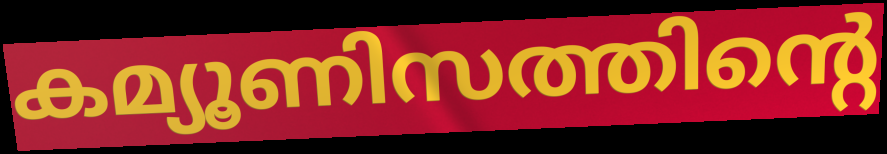
കമ്യൂണിസത്തിന്റെ